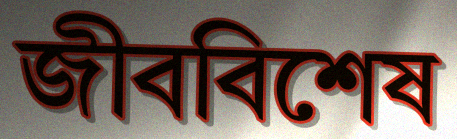
জীববিশেষ